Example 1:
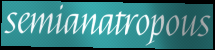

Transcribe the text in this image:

semianatropous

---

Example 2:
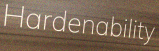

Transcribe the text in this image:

Hardenability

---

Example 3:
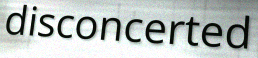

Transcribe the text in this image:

disconcerted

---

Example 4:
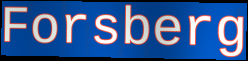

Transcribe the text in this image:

Forsberg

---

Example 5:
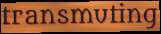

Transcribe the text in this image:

transmuting